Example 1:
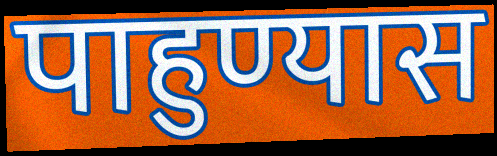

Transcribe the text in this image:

पाहुण्यास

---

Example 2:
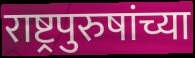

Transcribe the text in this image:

राष्ट्रपुरुषांच्या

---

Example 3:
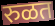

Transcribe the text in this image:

रुळत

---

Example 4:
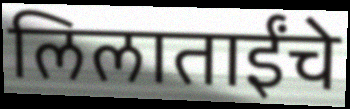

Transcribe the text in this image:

लिलाताईंचे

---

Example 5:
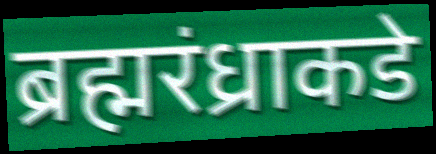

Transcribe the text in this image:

ब्रह्मरंध्राकडे